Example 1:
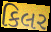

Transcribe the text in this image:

કિલર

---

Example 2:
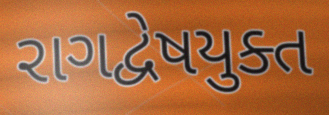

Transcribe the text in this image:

રાગદ્વેષયુક્ત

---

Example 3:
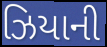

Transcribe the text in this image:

ઝિયાની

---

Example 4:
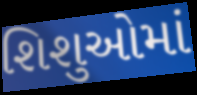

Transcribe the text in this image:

શિશુઓમાં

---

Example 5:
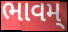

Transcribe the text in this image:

ભાવમ્